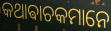
କଥାଵାଚକମାନେ